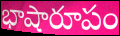
భాషారూపం